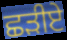
ਛੜੀਏ